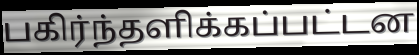
பகிர்ந்தளிக்கப்பட்டன